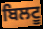
ਬਿਲਟੂ